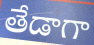
తేడాగా